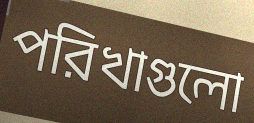
পরিখাগুলো